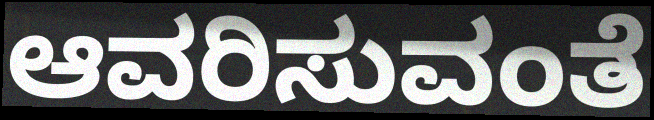
ಆವರಿಸುವಂತೆ